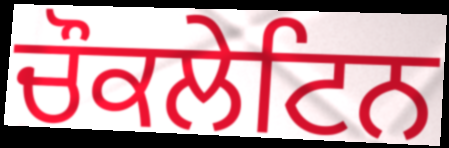
ਚੌਕਲੇਟਿਨ